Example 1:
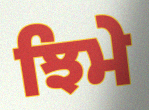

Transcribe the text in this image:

ਝਿਮੇ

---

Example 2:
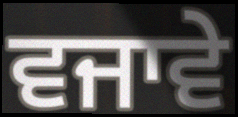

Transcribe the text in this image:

ਵਜਾਵੇ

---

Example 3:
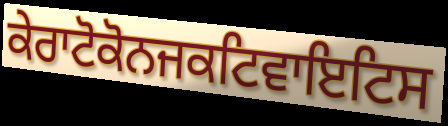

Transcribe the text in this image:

ਕੇਰਾਟੋਕੋਨਜਕਟਿਵਾਇਟਿਸ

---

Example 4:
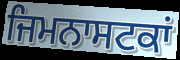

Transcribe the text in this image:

ਜਿਮਨਾਸਟਕਾਂ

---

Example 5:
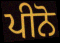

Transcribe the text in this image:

ਪੀਨੋ